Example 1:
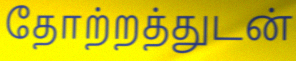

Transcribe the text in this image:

தோற்றத்துடன்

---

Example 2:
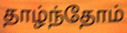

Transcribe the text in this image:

தாழ்ந்தோம்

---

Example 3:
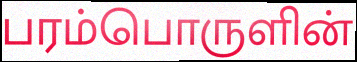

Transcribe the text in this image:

பரம்பொருளின்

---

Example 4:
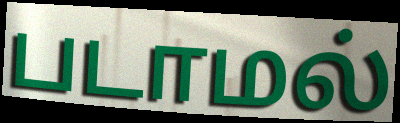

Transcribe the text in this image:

படாமல்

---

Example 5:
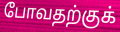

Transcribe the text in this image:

போவதற்குக்